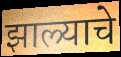
झाल्याचे